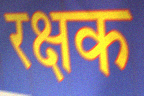
रक्षक